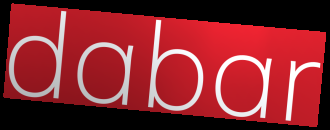
dabar